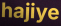
hajiye